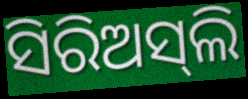
ସିରିଅସ୍‌ଲି